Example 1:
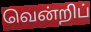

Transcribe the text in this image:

வென்றிப்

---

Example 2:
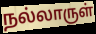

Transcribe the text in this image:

நல்லாருள்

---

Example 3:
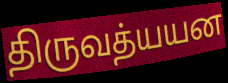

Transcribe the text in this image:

திருவத்யயன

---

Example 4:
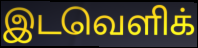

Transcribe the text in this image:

இடவெளிக்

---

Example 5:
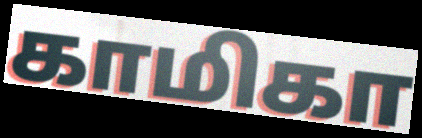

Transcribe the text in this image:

காமிகா